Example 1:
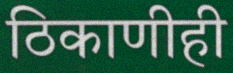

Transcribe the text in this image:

ठिकाणीही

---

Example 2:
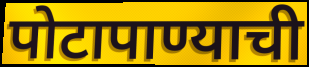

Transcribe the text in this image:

पोटापाण्याची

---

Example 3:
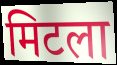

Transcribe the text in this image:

मिटला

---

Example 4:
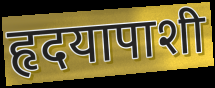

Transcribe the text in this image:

हृदयापाशी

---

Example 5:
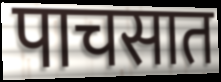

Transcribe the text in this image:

पाचसात